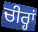
ਚੀਰ੍ਹਾਂ